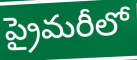
ప్రైమరీలో